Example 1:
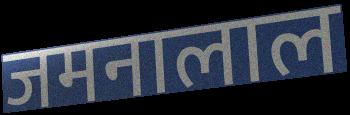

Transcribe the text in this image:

जमनालाल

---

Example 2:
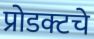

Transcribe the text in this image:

प्रोडक्टचे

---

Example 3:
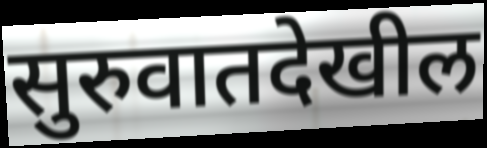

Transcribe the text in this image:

सुरुवातदेखील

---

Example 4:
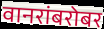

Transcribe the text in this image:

वानरांबरोबर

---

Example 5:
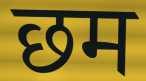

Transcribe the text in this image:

छम